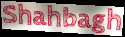
Shahbagh